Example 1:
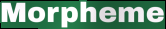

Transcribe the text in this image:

Morpheme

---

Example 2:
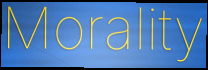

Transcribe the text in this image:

Morality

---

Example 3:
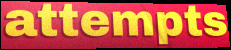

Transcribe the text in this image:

attempts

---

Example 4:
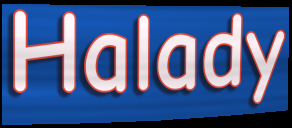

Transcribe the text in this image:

Halady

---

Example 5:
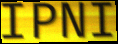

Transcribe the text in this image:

IPNI